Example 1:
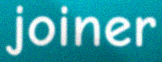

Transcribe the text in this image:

joiner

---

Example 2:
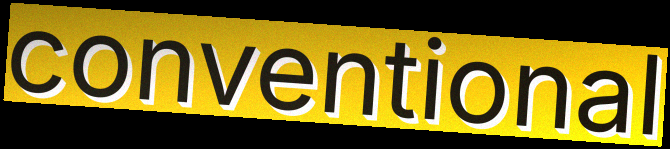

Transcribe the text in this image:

conventional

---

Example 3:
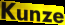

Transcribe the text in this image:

Kunze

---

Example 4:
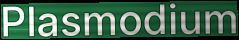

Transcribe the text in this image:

Plasmodium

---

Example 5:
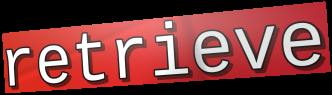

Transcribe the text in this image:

retrieve